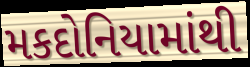
મકદોનિયામાંથી